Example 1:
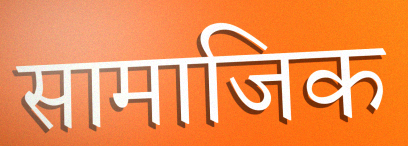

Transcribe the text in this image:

सामाजिक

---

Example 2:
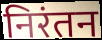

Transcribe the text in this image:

निरंतन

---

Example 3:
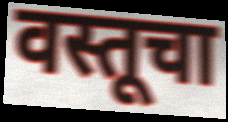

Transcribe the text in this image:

वस्तूचा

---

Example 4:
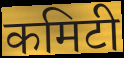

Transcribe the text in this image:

कमिटी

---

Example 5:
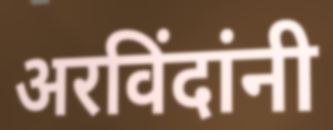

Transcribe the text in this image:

अरविंदांनी